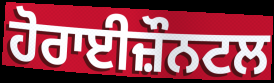
ਹੋਰਾਈਜ਼ੌਨਟਲ